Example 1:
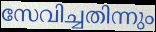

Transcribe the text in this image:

സേവിച്ചതിന്നും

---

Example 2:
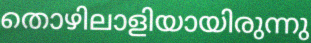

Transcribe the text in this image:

തൊഴിലാളിയായിരുന്നു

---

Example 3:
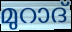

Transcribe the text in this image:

മുറാദ്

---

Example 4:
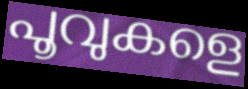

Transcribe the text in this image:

പൂവുകളെ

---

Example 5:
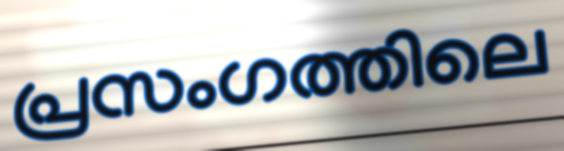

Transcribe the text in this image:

പ്രസംഗത്തിലെ